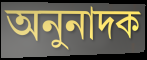
অনুনাদক